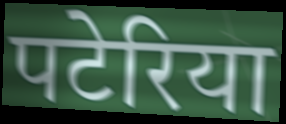
पटेरिया